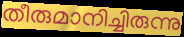
തീരുമാനിച്ചിരുന്നു